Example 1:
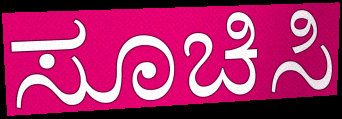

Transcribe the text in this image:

ಸೂಚಿಸಿ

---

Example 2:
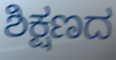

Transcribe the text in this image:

ಶಿಕ್ಷಣದ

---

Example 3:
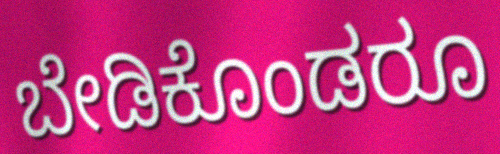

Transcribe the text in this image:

ಬೇಡಿಕೊಂಡರೂ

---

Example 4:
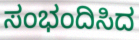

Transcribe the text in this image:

ಸಂಭಂದಿಸಿದ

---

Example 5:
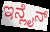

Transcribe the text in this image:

ಇನ್ಲೈನ್